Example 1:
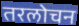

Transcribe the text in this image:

तरलोचन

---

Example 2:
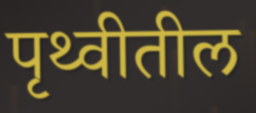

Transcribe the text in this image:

पृथ्वीतील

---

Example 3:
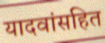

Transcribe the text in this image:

यादवांसहित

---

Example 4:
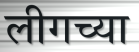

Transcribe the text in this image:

लीगच्या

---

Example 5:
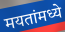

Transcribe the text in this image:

मयतांमध्ये